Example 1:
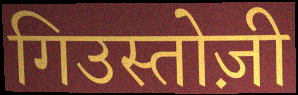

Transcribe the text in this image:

गिउस्तोज़ी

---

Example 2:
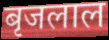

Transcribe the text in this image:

बृजलाल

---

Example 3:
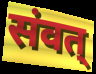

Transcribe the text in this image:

संवत्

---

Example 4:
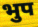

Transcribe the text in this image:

भुप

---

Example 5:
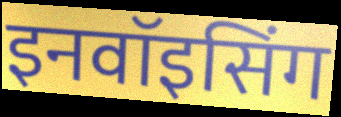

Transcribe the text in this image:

इनवॉइसिंग